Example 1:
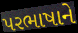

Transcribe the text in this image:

પરભાષાને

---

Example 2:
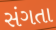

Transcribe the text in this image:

સંગતા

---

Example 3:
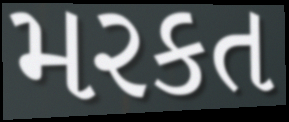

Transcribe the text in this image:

મરકત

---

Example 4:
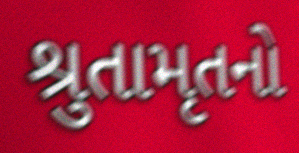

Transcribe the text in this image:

શ્રુતામૃતનો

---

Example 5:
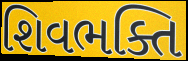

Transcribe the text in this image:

શિવભક્તિ